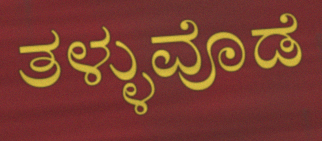
ತಳ್ಳುವೊಡೆ